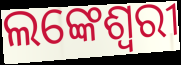
ଲଙ୍କେଶ୍ୱରୀ